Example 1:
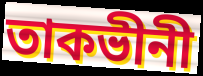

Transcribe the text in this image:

তাকভীনী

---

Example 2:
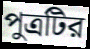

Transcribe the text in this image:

পুত্রটির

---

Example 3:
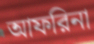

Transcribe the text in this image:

আফরিনা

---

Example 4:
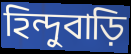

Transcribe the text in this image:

হিন্দুবাড়ি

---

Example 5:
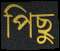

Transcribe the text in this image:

পিছু